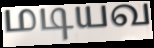
மடியவ